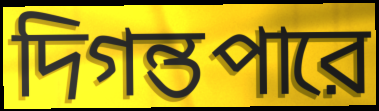
দিগন্তপারে